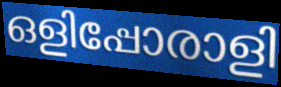
ഒളിപ്പോരാളി